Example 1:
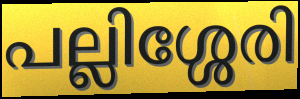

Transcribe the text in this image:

പല്ലിശ്ശേരി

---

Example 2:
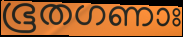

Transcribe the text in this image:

ഭൂതഗണാഃ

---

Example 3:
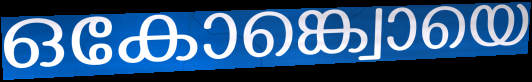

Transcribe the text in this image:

ഒകോങ്ക്വൊയെ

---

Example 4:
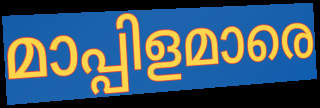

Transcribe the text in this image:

മാപ്പിളമാരെ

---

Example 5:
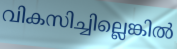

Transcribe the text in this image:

വികസിച്ചില്ലെങ്കിൽ